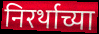
निरर्थाच्या